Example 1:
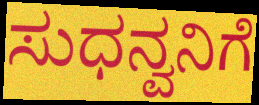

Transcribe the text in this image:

ಸುಧನ್ವನಿಗೆ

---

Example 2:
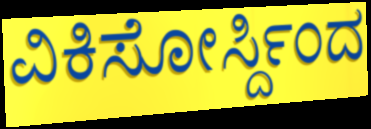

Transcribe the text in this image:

ವಿಕಿಸೋರ್ಸ್ದಿಂದ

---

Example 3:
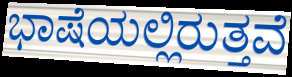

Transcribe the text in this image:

ಭಾಷೆಯಲ್ಲಿರುತ್ತವೆ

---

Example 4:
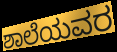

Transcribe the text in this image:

ಶಾಲೆಯವರ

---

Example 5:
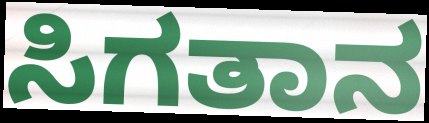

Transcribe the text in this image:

ಸಿಗತಾನ